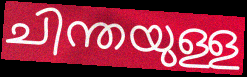
ചിന്തയുള്ള